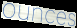
ounces